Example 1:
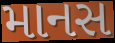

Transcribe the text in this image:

માનસ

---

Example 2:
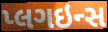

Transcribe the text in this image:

પ્લગઇન્સ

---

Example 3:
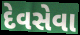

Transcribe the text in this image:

દેવસેવા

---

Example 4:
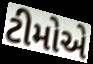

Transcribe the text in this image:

ટીમોએ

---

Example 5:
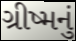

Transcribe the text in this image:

ગ્રીષ્મનું